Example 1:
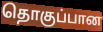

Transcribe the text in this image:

தொகுப்பான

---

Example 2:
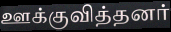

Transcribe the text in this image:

ஊக்குவித்தனர்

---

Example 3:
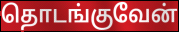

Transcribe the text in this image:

தொடங்குவேன்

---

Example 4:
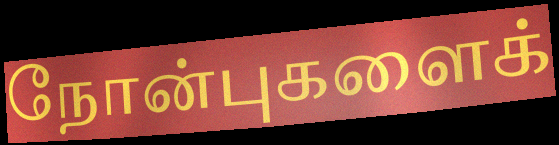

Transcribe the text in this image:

நோன்புகளைக்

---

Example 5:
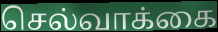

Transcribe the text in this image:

செல்வாக்கை